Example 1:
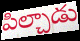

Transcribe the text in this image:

పిల్చాడు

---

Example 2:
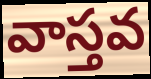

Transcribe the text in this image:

వాస్తవ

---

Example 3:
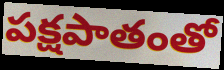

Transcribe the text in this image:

పక్షపాతంతో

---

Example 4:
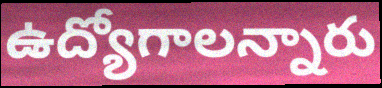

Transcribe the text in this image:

ఉద్యోగాలన్నారు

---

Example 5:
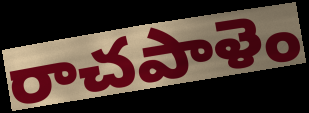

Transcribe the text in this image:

రాచపాళెం